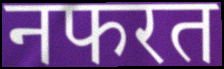
नफरत